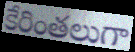
కేరింతలుగా